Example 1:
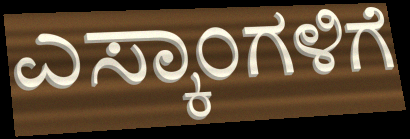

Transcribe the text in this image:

ಎಸ್ಕಾಂಗಳಿಗೆ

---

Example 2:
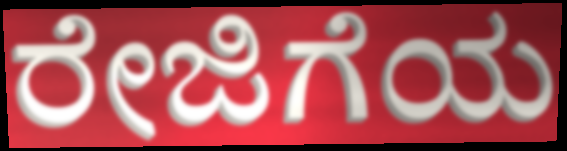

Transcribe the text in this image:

ರೇಜಿಗೆಯ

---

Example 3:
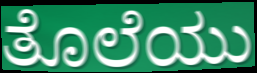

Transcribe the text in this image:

ತೊಲೆಯು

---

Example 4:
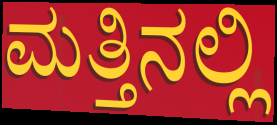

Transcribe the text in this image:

ಮತ್ತಿನಲ್ಲಿ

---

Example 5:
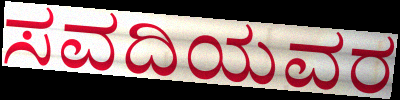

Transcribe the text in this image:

ಸವದಿಯವರ